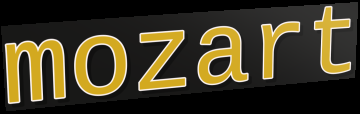
mozart